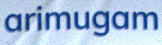
arimugam